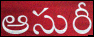
ఆసురీ